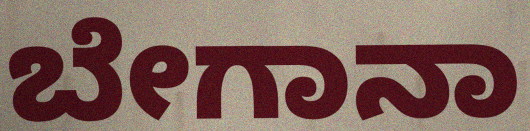
ಬೇಗಾನಾ